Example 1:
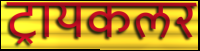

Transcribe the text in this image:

ट्रायकलर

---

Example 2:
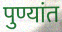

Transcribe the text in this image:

पुण्यांत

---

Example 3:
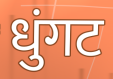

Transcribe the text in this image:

धुंगट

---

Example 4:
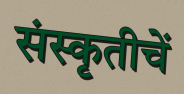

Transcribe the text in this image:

संस्कृतीचें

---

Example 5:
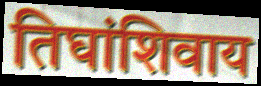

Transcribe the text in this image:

तिघांशिवाय